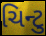
ચિન્ટુ